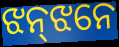
ଝନ୍‌ଝନେ